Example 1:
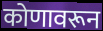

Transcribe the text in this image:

कोणावरून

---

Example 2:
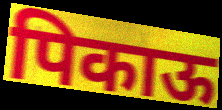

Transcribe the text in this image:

पिकाऊ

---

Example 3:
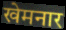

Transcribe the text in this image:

खेमनार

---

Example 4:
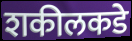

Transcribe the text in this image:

शकीलकडे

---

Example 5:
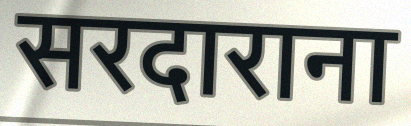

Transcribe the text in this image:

सरदाराना